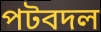
পটবদল